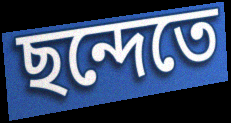
ছন্দেতে